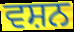
ਵਸ਼ਨ